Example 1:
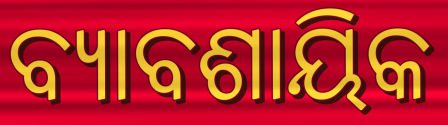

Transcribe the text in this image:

ବ୍ୟାବଶାୟିକ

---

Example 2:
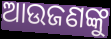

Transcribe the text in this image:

ଆଉଜଣଙ୍କୁ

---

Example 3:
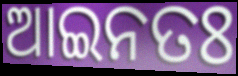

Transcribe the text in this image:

ଆଇନତଃ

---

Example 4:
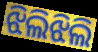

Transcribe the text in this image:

ଝିଲିଝିଲି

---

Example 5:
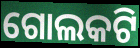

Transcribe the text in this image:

ଗୋଲକଟି